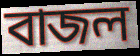
বাজল